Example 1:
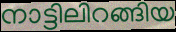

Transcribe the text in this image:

നാട്ടിലിറങ്ങിയ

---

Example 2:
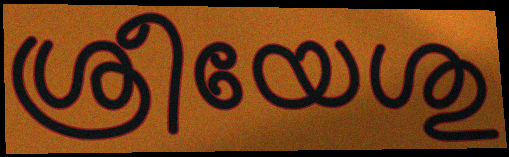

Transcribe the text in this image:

ശ്രീയേശു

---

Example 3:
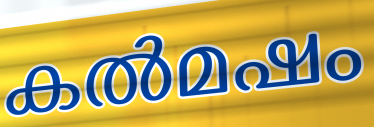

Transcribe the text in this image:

കൽമഷം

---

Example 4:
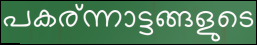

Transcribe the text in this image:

പകര്ന്നാട്ടങ്ങളുടെ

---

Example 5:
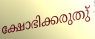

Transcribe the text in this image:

ക്ഷോഭിക്കരുതു്